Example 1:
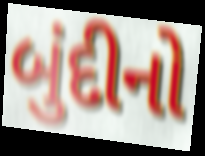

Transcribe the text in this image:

બુંદીનો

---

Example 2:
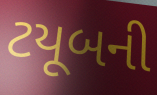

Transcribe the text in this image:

ટયૂબની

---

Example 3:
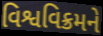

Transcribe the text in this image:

વિશ્વવિક્રમને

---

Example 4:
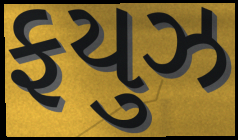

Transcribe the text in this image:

ફયુઝ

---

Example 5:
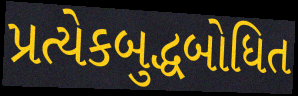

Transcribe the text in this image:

પ્રત્યેકબુદ્ધબોધિત